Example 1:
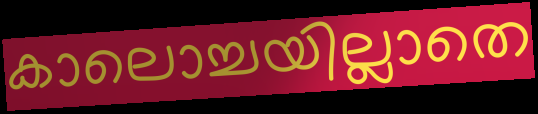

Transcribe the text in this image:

കാലൊച്ചയില്ലാതെ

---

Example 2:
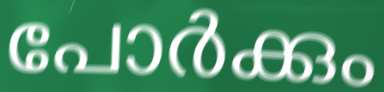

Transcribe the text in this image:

പോർക്കും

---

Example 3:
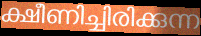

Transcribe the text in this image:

ക്ഷീണിച്ചിരിക്കുന്ന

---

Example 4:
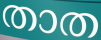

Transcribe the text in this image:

താത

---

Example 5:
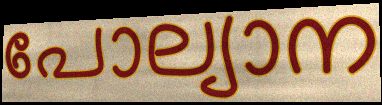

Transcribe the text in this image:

പോല്യാന